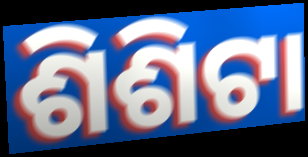
ଶିଶିଟା